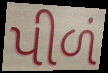
પીળં